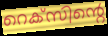
റെക്‌സിന്റെ